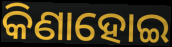
କିଣାହୋଇ